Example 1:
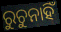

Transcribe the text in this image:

ରୁଚୁନାହିଁ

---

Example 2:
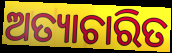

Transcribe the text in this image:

ଅତ୍ୟାଚାରିତ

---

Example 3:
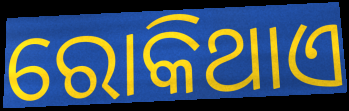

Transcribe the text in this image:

ରୋକିଥାଏ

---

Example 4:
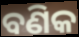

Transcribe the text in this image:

ବଣିକ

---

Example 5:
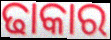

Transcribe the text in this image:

ଢାକାର